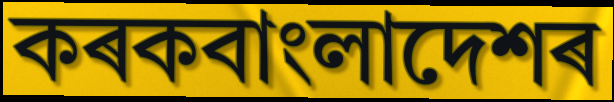
কৰকবাংলাদেশৰ